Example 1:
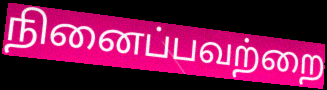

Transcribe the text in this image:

நினைப்பவற்றை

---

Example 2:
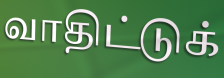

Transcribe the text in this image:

வாதிட்டுக்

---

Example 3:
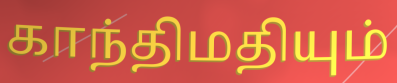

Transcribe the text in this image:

காந்திமதியும்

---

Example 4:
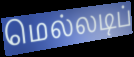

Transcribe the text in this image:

மெல்லடிப்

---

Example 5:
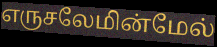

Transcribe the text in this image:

எருசலேமின்மேல்